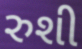
રુશી